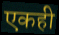
एकही